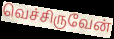
வெச்சிருவேன்